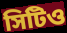
সিটিও